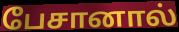
பேசானால்